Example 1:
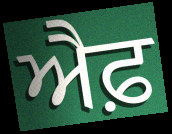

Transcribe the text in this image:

ਐਫ਼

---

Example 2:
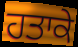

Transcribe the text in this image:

ਹਤਾਕੇ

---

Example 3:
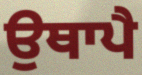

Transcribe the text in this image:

ਉਥਾਪੈ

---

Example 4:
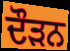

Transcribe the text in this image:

ਦੌਡ਼ਨ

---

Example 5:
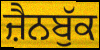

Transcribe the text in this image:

ਜ਼ੈਨਬੁੱਕ